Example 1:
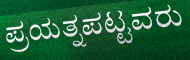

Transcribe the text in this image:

ಪ್ರಯತ್ನಪಟ್ಟವರು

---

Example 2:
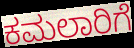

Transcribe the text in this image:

ಕಮಲಾರಿಗೆ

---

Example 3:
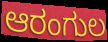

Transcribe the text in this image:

ಆರಂಗುಲ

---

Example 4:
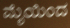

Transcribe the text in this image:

ಮೈಯಿಂದ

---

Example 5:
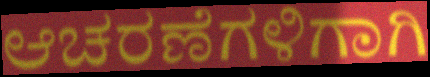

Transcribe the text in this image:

ಆಚರಣೆಗಳಿಗಾಗಿ